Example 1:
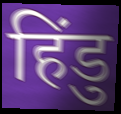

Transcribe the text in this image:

हिंडु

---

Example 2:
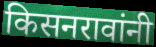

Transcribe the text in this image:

किसनरावांनी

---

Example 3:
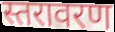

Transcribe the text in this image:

स्तरावरण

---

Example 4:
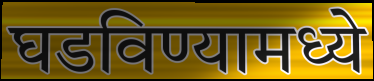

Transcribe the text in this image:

घडविण्यामध्ये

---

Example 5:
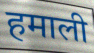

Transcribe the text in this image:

हमाली